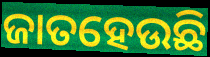
ଜାତହେଉଛି